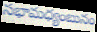
సభామధ్యంబునం